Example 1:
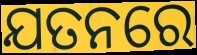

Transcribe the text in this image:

ଯତନରେ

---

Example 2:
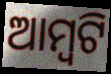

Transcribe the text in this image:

ଆମ୍ୱଟି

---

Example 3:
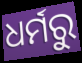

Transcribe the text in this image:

ଧର୍ମରୁ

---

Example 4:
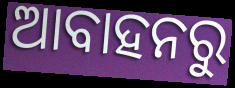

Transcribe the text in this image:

ଆବାହନରୁ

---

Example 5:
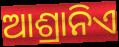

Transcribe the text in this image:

ଆଶ୍ରାନିଏ